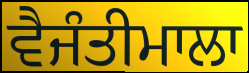
ਵੈਜੰਤੀਮਾਲਾ